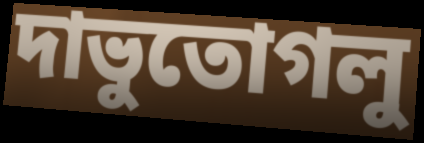
দাভুতোগলু